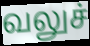
வலுச்